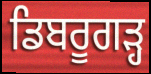
ਡਿਬਰੂਗੜ੍ਹ